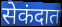
सेकंदात